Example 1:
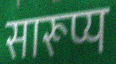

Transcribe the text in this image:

सारूप्य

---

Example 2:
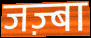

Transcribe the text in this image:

जज़्बा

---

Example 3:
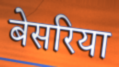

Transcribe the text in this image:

बेसरिया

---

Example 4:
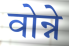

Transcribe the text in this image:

वोन्ने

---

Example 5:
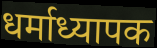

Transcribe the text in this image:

धर्माध्यापक